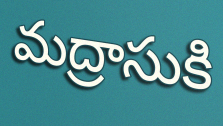
మద్రాసుకి